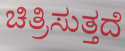
ಚಿತ್ರಿಸುತ್ತದೆ